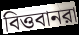
বিত্তবানরা